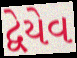
દ્વેયેવ